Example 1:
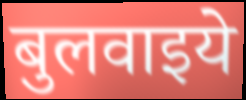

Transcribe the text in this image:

बुलवाइये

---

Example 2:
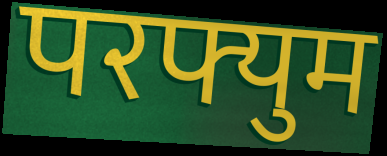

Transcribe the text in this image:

परफ्युम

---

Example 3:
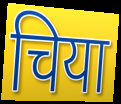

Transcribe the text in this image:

चिया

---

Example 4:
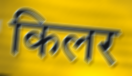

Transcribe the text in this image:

किलर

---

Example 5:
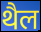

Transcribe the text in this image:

थैल